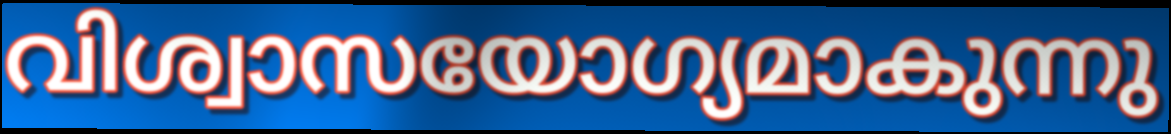
വിശ്വാസയോഗ്യമാകുന്നു